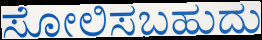
ಸೋಲಿಸಬಹುದು